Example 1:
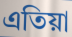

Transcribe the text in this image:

এতিয়া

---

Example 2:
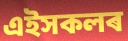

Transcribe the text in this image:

এইসকলৰ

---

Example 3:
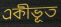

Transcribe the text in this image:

একীভূত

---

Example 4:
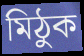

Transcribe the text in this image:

মিঠুক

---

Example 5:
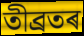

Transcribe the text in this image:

তীব্ৰতৰ